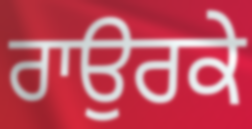
ਰਾਉਰਕੇ